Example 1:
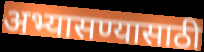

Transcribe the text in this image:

अभ्यासण्यासाठी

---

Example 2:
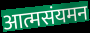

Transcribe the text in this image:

आत्मसंयमन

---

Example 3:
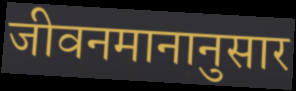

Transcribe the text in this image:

जीवनमानानुसार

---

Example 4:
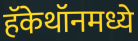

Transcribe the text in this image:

हॅकेथॉनमध्ये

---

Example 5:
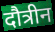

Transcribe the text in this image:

दौत्रीन